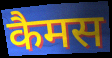
कैमस